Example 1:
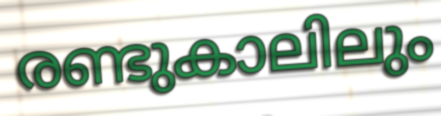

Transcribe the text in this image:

രണ്ടുകാലിലും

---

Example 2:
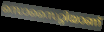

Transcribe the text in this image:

സൊസൈറ്റിയാണ്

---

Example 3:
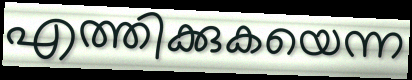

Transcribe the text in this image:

എത്തിക്കുകയെന്ന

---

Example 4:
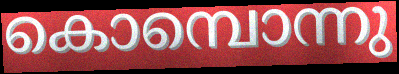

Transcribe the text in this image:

കൊമ്പൊന്നു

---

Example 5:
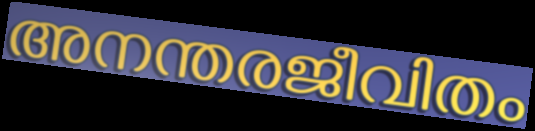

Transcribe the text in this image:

അനന്തരജീവിതം